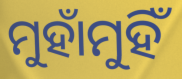
ମୁହାଁମୁହିଁ